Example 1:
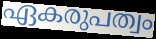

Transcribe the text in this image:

ഏകരുപത്വം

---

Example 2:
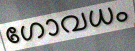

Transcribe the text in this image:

ഗോവധം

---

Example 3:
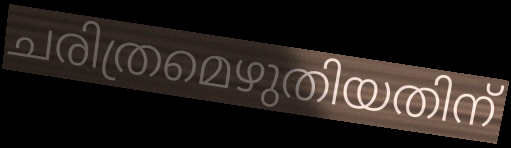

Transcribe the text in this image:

ചരിത്രമെഴുതിയതിന്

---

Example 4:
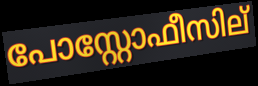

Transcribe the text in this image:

പോസ്റ്റോഫീസില്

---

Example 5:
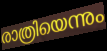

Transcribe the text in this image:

രാത്രിയെന്നും